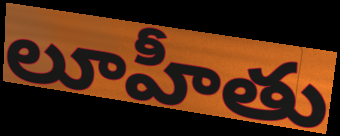
లూహీతు